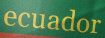
ecuador